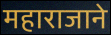
महाराजाने